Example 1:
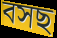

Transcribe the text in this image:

বসছ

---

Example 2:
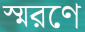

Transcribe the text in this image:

স্মরণে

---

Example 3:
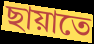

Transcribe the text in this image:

ছায়াতে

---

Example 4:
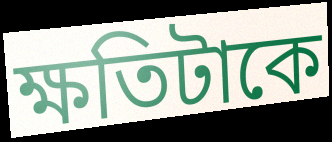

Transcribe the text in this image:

ক্ষতিটাকে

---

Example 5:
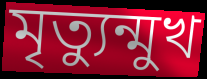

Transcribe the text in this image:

মৃত্যুন্মুখ